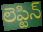
లెప్టిన్